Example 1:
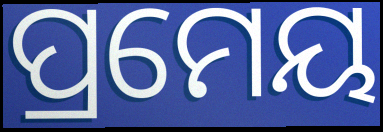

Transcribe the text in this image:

ପ୍ରମେୟ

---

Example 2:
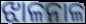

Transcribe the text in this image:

ଝାଳନାଳ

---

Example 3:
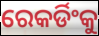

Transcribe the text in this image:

ରେକର୍ଡିଂକୁ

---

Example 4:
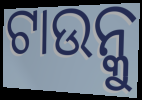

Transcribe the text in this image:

ଟାଉନ୍କୁ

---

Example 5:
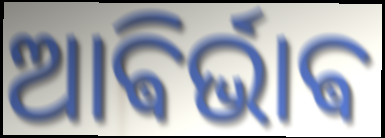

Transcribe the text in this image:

ଆଵିର୍ଭାଵ